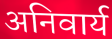
अनिवार्य